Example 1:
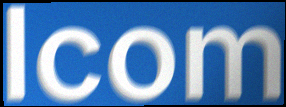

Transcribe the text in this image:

Icom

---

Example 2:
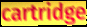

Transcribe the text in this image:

cartridge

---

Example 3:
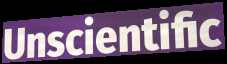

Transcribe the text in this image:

Unscientific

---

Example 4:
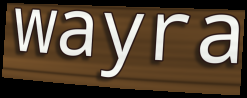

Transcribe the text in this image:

wayra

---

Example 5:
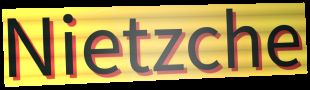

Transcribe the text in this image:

Nietzche